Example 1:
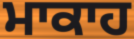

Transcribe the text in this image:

ਮਾਕਾਹ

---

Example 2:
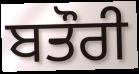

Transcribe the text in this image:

ਬਤੌਰੀ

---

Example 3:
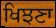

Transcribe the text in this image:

ਖਿਝਣਾ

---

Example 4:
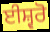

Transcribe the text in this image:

ਈਸ਼੍ਵਰੋ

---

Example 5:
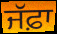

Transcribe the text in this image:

ਜੱਫ਼ਾ